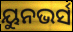
ୟୁନଭର୍ସ